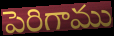
పెరిగాము